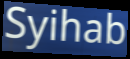
Syihab